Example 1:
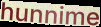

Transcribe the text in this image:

hunnime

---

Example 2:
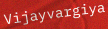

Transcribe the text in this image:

Vijayvargiya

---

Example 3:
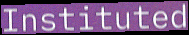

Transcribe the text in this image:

Instituted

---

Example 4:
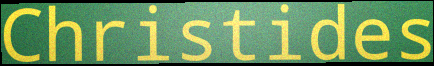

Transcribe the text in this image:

Christides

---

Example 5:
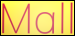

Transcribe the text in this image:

Mall